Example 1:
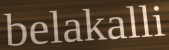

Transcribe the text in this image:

belakalli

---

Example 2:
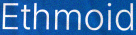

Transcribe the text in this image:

Ethmoid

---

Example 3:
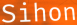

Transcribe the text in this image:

Sihon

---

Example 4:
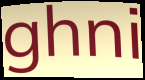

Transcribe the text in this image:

ghni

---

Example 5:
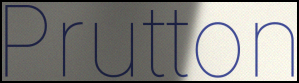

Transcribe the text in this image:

Prutton